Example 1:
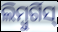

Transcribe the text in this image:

ଲିମ୍ବୁର୍ଗିସ୍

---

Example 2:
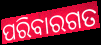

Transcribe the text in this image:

ପରିବାରଗତ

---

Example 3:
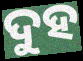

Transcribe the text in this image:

ଦୁହ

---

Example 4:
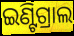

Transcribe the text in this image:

ଇଣ୍ଟିଗ୍ରାଲ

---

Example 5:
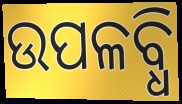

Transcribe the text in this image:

ଉପଳବ୍ଧି